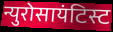
न्युरोसायंटिस्ट